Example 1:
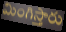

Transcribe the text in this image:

మింగిస్తారు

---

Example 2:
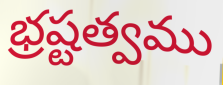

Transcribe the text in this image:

భ్రష్టత్వము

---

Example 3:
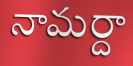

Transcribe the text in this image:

నామర్దా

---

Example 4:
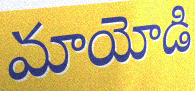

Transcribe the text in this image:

మాయోడి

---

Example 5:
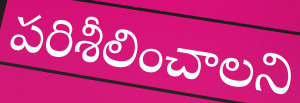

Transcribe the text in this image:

పరిశీలించాలని